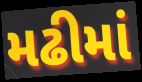
મઢીમાં